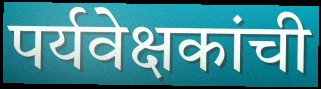
पर्यवेक्षकांची